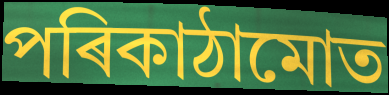
পৰিকাঠামোত